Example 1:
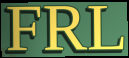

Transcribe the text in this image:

FRL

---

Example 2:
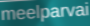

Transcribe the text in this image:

meelparvai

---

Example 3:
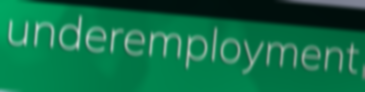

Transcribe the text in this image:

underemployment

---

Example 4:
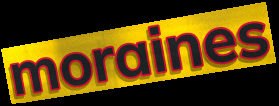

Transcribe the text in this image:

moraines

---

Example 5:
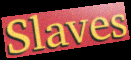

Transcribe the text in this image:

Slaves